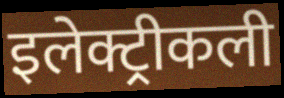
इलेक्ट्रीकली